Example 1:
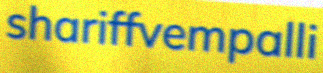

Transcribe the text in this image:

shariffvempalli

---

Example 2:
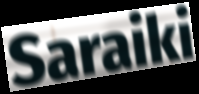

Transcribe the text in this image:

Saraiki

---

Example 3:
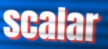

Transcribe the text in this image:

scalar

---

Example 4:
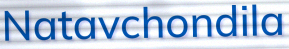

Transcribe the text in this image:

Natavchondila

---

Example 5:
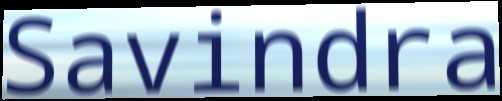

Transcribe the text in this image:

Savindra